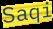
Saqi